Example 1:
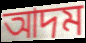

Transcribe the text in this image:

আদম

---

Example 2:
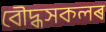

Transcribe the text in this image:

বৌদ্ধসকলৰ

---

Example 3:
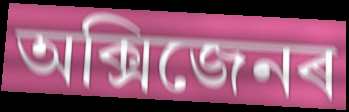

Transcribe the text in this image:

অক্সিজেনৰ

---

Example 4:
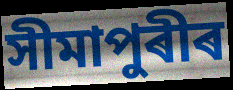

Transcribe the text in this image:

সীমাপুৰীৰ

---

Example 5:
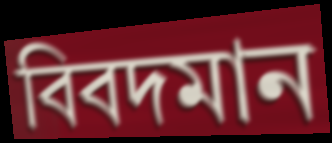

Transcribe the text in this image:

বিবদমান